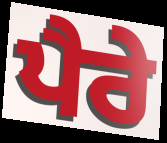
ਪੈਰੇ